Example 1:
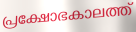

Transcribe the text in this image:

പ്രക്ഷോഭകാലത്ത്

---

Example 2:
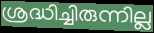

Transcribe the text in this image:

ശ്രദ്ധിച്ചിരുന്നില്ല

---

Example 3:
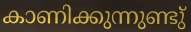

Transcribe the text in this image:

കാണിക്കുന്നുണ്ടു്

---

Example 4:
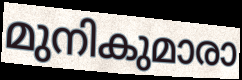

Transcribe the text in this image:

മുനികുമാരാ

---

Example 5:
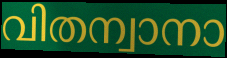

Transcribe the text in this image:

വിതന്വാനാ